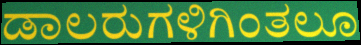
ಡಾಲರುಗಳಿಗಿಂತಲೂ